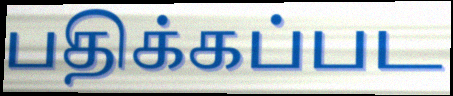
பதிக்கப்பட